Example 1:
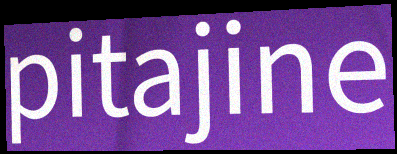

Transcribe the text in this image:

pitajine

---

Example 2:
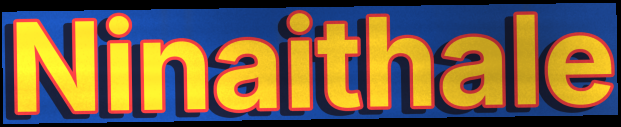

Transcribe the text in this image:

Ninaithale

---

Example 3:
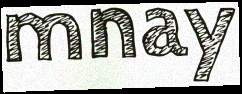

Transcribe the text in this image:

mnay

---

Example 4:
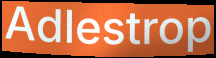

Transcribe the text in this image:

Adlestrop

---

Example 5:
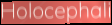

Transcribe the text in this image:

Holocephali